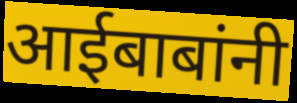
आईबाबांनी